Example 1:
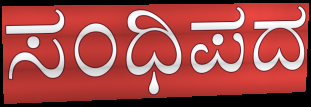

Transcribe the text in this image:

ಸಂಧಿಪದ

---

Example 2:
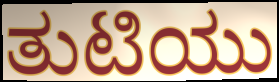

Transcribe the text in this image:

ತುಟಿಯು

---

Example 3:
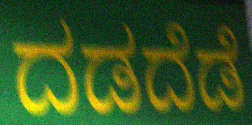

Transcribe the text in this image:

ದಡದೆಡೆ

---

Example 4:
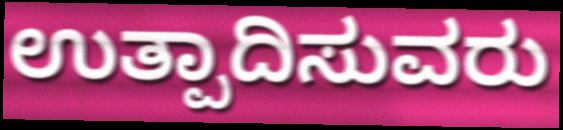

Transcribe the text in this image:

ಉತ್ಪಾದಿಸುವರು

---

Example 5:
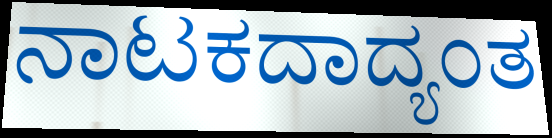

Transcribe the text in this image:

ನಾಟಕದಾದ್ಯಂತ